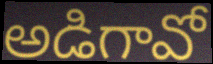
అడిగావో